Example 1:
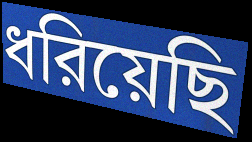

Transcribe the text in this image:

ধরিয়েছি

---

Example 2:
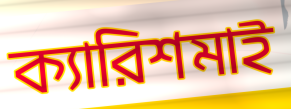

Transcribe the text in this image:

ক্যারিশমাই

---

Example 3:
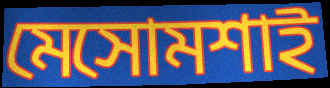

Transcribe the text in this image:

মেসোমশাই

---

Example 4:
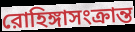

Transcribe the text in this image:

রোহিঙ্গাসংক্রান্ত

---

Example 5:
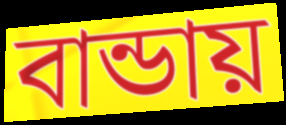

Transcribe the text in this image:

বান্ডায়